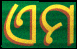
ଏମ